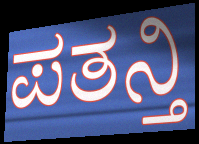
ಪತನ್ತಿ